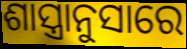
ଶାସ୍ତ୍ରାନୁସାରେ